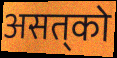
असत्‌को